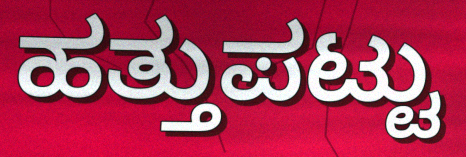
ಹತ್ತುಪಟ್ಟು